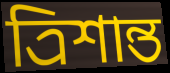
ত্রিশান্ত